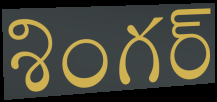
శింగర్